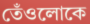
তেঁওলোকে